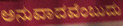
ಅನುವಾದವೆಂಬುದು